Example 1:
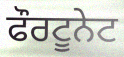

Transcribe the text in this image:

ਫੌਰਟੂਨੇਟ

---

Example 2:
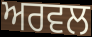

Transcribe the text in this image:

ਅਰਵਲ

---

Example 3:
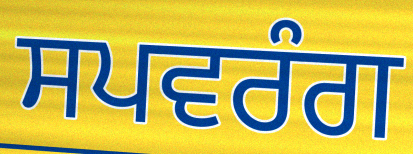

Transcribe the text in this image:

ਸਪਵਰੰਗ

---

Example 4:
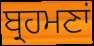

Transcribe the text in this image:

ਬ੍ਰਹਮਣਾਂ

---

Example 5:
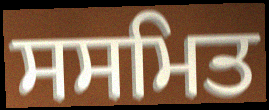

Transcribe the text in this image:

ਸਸਮਿਤ